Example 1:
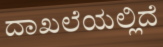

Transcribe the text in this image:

ದಾಖಲೆಯಲ್ಲಿದೆ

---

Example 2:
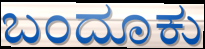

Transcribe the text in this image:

ಬಂದೂಕು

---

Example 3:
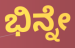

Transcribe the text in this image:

ಭಿನ್ನೇ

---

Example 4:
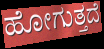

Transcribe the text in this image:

ಹೋಗುತ್ತದೆ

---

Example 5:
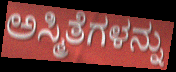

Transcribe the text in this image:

ಅಸ್ಮಿತೆಗಳನ್ನು